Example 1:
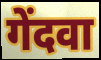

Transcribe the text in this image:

गेंदवा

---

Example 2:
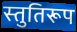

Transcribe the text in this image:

स्तुतिरूप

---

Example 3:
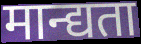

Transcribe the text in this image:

मान्द्यता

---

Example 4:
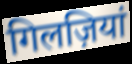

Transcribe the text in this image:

गिलज़ियां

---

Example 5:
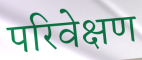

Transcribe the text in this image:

परिवेक्षण